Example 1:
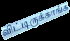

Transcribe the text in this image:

விட்டிருக்காங்க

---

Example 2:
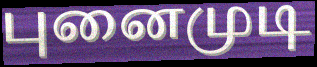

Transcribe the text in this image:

புனைமுடி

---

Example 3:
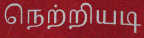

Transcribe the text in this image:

நெற்றியடி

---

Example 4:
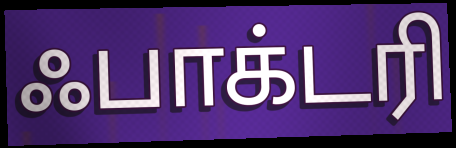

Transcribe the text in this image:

ஃபாக்டரி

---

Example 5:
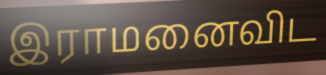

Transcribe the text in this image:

இராமனைவிட